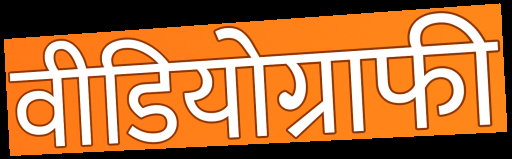
वीडियोग्राफी